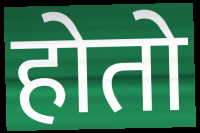
होतो